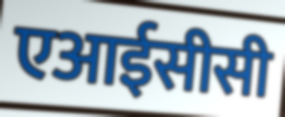
एआईसीसी